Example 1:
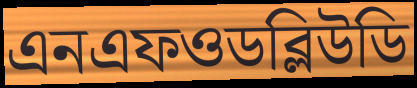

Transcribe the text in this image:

এনএফওডব্লিউডি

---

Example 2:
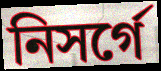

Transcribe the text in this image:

নিসর্গে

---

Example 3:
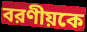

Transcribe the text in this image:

বরণীয়কে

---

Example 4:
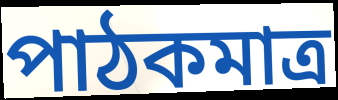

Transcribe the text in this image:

পাঠকমাত্র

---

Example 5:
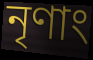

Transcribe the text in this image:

নৃণাং